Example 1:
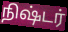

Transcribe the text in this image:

நிஷ்டர்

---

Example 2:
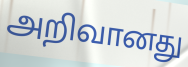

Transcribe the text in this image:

அறிவானது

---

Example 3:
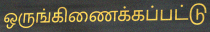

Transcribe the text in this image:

ஒருங்கிணைக்கப்பட்டு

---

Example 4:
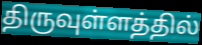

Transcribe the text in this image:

திருவுள்ளத்தில்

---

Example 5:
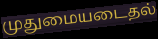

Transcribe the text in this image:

முதுமையடைதல்